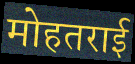
मोहतराई